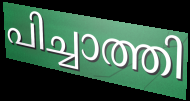
പിച്ചാത്തി